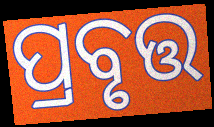
ପ୍ରବୃତ୍ତ